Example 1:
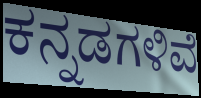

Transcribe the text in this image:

ಕನ್ನಡಗಳಿವೆ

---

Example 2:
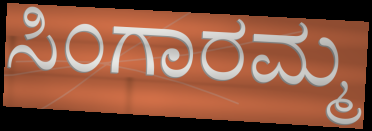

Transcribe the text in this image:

ಸಿಂಗಾರಮ್ಮ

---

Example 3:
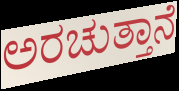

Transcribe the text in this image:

ಅರಚುತ್ತಾನೆ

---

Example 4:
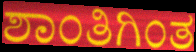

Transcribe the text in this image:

ಶಾಂತಿಗಿಂತ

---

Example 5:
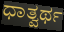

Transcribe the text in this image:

ಧಾತ್ವರ್ಥ